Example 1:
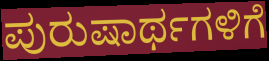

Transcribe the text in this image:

ಪುರುಷಾರ್ಥಗಳಿಗೆ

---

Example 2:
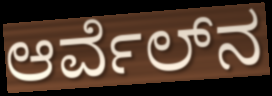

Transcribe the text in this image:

ಆರ್ವೆಲ್‍ನ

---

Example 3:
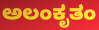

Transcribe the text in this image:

ಅಲಂಕೃತಂ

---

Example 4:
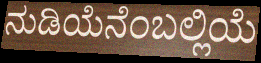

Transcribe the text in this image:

ನುಡಿಯೆನೆಂಬಲ್ಲಿಯೆ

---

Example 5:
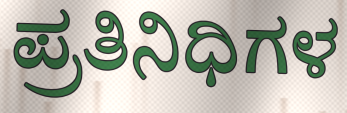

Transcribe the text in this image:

ಪ್ರತಿನಿಧಿಗಳ